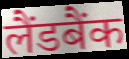
लैंडबैंक